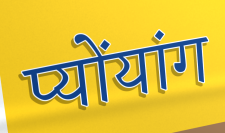
प्योंयांग